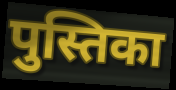
पुस्तिका